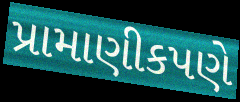
પ્રામાણીકપણે